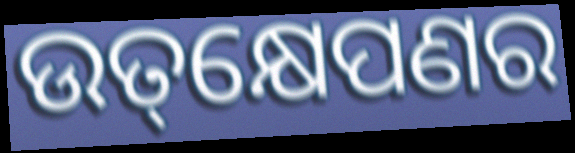
ଉତ୍‌କ୍ଷେପଣର